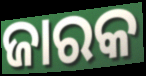
ଜାରକ